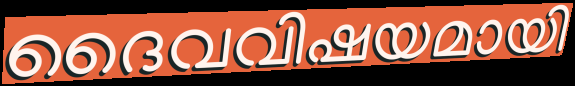
ദൈവവിഷയമായി